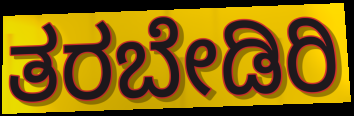
ತರಬೇಡಿರಿ